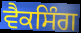
ਵੈਕਸਿੰਗ